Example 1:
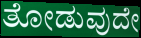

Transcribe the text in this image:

ತೋಡುವುದೇ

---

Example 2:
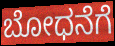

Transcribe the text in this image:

ಬೋಧನೆಗೆ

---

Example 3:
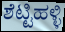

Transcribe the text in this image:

ಶೆಟ್ಟಿಹಳ್ಳಿ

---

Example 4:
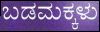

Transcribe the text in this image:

ಬಡಮಕ್ಕಳು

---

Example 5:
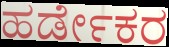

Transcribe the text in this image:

ಹರ್ಡೇಕರ